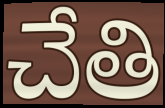
చేతి